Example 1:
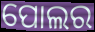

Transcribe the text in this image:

ପୋଲର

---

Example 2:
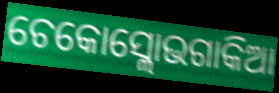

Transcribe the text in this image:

ଚେକୋସ୍ଲୋଭଗାକିଆ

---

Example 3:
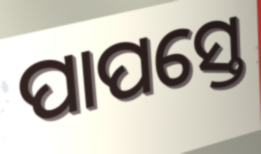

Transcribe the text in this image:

ପାପସ୍ତେ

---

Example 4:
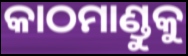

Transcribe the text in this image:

କାଠମାଣ୍ଡୁକୁ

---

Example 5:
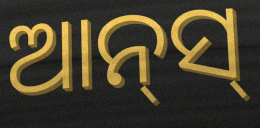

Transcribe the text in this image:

ଆନ୍‌ସ୍